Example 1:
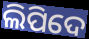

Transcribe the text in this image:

ଲିପିଦେ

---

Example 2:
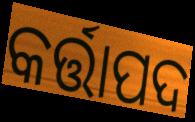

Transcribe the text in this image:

କର୍ତ୍ତାପଦ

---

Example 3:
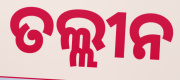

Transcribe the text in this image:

ତଲ୍ଲୀନ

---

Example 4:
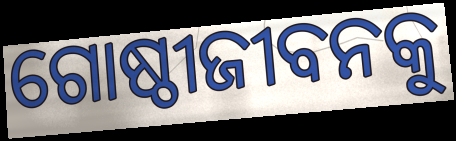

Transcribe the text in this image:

ଗୋଷ୍ଠୀଜୀବନକୁ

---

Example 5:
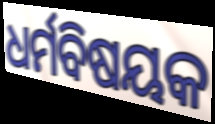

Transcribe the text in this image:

ଧର୍ମବିଷୟକ